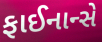
ફાઈનાન્સે